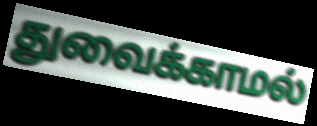
துவைக்காமல்